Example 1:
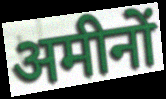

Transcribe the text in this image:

अमीनों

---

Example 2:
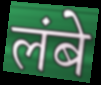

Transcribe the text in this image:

लंबे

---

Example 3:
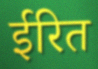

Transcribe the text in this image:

ईरित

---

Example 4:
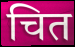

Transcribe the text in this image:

चित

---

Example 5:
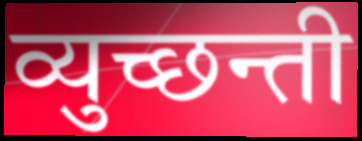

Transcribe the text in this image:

व्युच्छन्ती